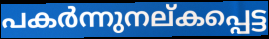
പകർന്നുനല്കപ്പെട്ട